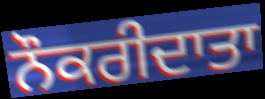
ਨੌਕਰੀਦਾਤਾ